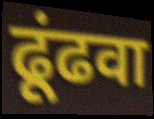
ढूंढवा